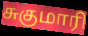
சுகுமாரி